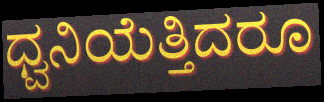
ಧ್ವನಿಯೆತ್ತಿದರೂ